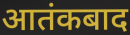
आतंकबाद